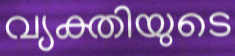
വ്യക്തിയുടെ